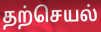
தற்செயல்